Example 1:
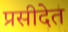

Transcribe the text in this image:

प्रसीदेत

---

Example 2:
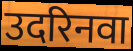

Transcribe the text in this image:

उदरिनवा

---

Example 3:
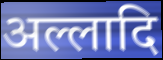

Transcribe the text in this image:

अल्लादि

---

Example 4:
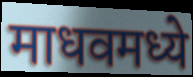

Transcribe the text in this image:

माधवमध्ये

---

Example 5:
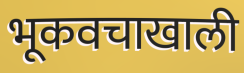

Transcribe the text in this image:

भूकवचाखाली